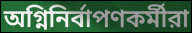
অগ্নিনির্বাপণকর্মীরা